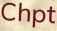
Chpt